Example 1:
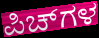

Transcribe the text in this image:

ಪಿಚ್‌ಗಳ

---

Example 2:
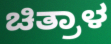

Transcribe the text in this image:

ಚಿತ್ರಾಳ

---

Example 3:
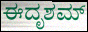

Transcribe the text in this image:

ಈದೃಶಮ್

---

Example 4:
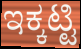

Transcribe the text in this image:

ಇಕ್ಕಟ್ಟಿ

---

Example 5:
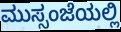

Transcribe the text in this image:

ಮುಸ್ಸಂಜೆಯಲ್ಲಿ